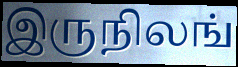
இருநிலங்